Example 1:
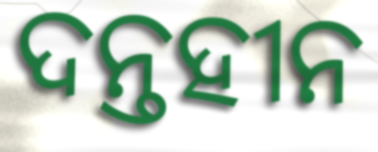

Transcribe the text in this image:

ଦନ୍ତହୀନ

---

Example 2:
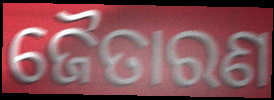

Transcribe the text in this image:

ଜୈତାରଣ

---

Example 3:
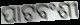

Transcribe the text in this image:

ପାଟବଂଶୀ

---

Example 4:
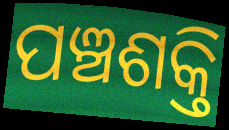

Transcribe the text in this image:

ପଞ୍ଚଶକ୍ତି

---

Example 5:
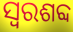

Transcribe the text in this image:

ସ୍ୱରଶବ୍ଦ